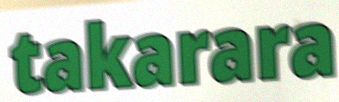
takarara